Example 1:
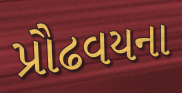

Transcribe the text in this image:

પ્રૌઢવયના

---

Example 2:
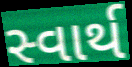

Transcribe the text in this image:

સ્વાર્થ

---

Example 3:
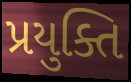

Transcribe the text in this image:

પ્રયુક્તિ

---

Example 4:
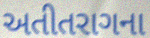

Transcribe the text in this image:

અતીતરાગના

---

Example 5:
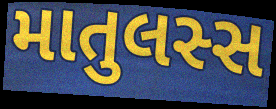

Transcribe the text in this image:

માતુલસ્સ